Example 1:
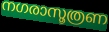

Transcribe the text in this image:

നഗരാസൂത്രണ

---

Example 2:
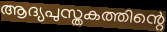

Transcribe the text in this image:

ആദ്യപുസ്തകത്തിന്റെ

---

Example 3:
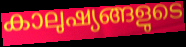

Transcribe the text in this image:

കാലുഷ്യങ്ങളുടെ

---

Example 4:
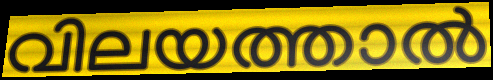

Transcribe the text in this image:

വിലയത്താൽ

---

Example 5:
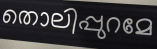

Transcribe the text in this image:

തൊലിപ്പുറമേ